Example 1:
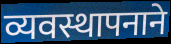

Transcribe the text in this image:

व्यवस्थापनाने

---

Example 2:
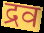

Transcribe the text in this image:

द्रव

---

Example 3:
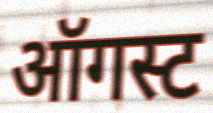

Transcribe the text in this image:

ऑगस्ट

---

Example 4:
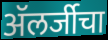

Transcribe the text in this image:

ॲलर्जीचा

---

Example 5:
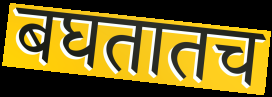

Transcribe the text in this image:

बघतातच